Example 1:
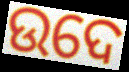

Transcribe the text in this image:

ଉଦେ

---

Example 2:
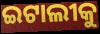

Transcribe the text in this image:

ଇଟାଲୀକୁ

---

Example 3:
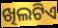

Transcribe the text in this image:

ଖିଲଟିଏ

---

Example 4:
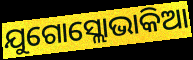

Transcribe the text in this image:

ଯୁଗୋସ୍ଲୋଭାକିଆ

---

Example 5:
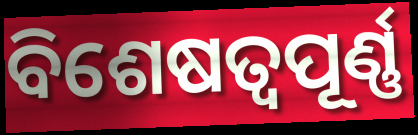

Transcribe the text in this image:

ବିଶେଷତ୍ୱପୂର୍ଣ୍ଣ